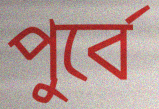
পুর্বে